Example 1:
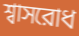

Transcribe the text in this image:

শ্বাসরোধ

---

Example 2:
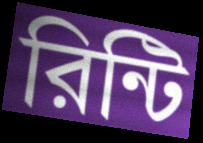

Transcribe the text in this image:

রিন্টি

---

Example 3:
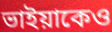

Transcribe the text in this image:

ভাইয়াকেও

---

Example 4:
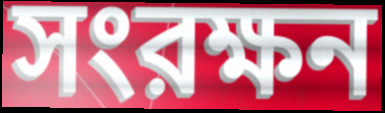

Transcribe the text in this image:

সংরক্ষন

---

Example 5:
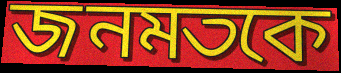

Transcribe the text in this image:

জনমতকে